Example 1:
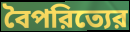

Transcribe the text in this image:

বৈপরিত্যের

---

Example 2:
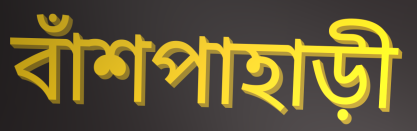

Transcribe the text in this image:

বাঁশপাহাড়ী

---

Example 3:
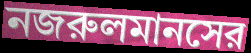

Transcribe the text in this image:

নজরুলমানসের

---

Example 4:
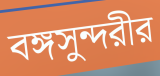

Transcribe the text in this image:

বঙ্গসুন্দরীর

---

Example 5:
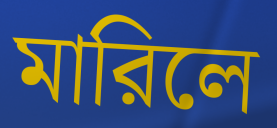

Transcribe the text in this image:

মারিলে